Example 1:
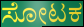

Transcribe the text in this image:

ಸೋಟಕ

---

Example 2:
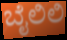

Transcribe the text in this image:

ಬೈಲಿಲಿ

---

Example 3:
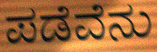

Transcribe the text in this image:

ಪಡೆವೆನು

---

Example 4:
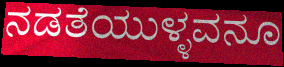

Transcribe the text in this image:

ನಡತೆಯುಳ್ಳವನೂ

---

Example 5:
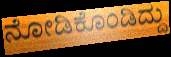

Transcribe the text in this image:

ನೋಡಿಕೊಂಡಿದ್ದು